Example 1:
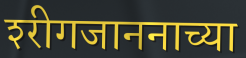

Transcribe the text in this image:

श्रीगजाननाच्या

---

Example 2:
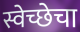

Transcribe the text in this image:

स्वेच्छेचा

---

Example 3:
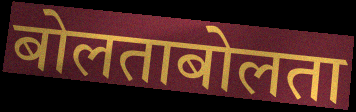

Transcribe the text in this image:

बोलताबोलता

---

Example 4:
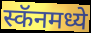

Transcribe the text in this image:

स्कॅनमध्ये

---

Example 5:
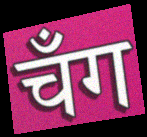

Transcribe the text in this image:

चँग